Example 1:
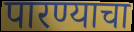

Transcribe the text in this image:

पारण्याचा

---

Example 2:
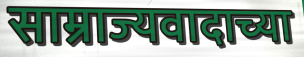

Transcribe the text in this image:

साम्राज्यवादाच्या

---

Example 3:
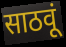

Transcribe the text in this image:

साठवूं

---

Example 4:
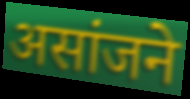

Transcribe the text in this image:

असांजने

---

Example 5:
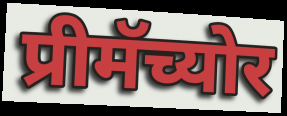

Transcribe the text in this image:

प्रीमॅच्योर